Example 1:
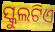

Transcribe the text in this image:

ସ୍କୁଲଟିଏ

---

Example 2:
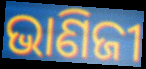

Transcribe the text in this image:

ଭାଣିଜୀ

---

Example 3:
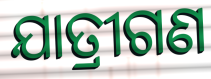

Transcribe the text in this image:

ଯାତ୍ରୀଗଣ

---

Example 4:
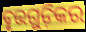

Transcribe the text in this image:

ବୃତ୍ତଗୁଡ଼ିକର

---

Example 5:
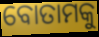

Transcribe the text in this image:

ବୋତାମକୁ